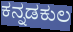
ಕನ್ನಡಕುಲ